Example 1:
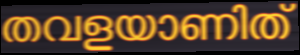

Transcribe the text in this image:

തവളയാണിത്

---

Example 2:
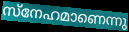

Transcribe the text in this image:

സ്നേഹമാണെന്നു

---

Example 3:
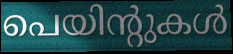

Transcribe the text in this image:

പെയിന്റുകൾ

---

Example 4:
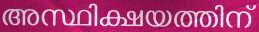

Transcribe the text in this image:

അസ്ഥിക്ഷയത്തിന്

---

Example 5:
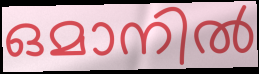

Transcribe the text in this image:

ഒമാനിൽ